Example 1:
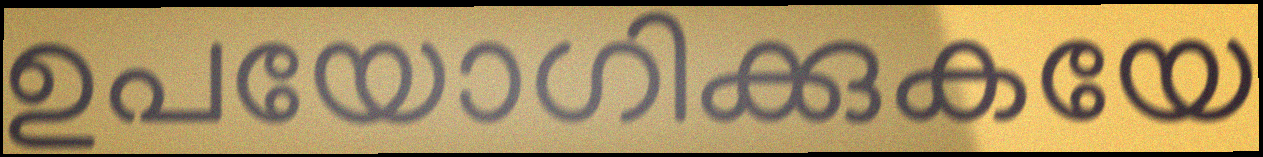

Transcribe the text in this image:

ഉപയോഗിക്കുകയേ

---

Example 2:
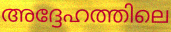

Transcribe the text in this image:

അദ്ദേഹത്തിലെ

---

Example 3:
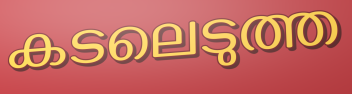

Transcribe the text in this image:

കടലെടുത്ത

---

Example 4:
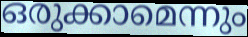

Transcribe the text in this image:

ഒരുക്കാമെന്നും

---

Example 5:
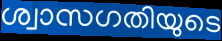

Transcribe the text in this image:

ശ്വാസഗതിയുടെ